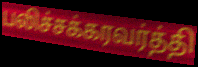
பலிச்சக்கரவர்த்தி